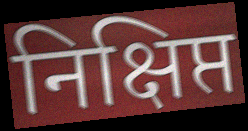
निक्षिप्त